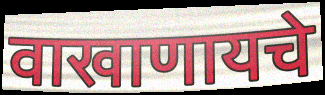
वाखाणायचे